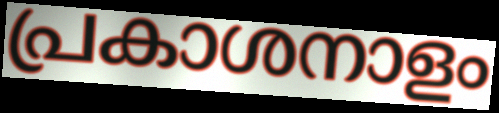
പ്രകാശനാളം